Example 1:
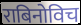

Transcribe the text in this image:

राबिनोविच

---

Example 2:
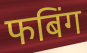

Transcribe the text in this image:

फबिंग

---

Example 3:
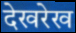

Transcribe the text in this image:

देखरेख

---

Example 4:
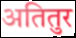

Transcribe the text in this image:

अतितुर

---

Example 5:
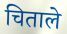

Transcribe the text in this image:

चिताले